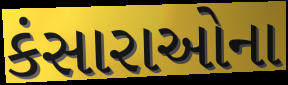
કંસારાઓના